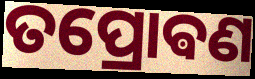
ତପ୍ରୋଵଣ